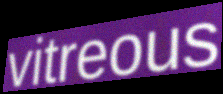
vitreous